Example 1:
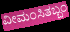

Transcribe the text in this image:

ವೀಮಂಸಿತಬ್ಬಂ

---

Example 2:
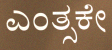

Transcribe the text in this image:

ಎಂತ್ಸಕೇ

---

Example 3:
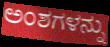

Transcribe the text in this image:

ಅಂಶಗಳನ್ನು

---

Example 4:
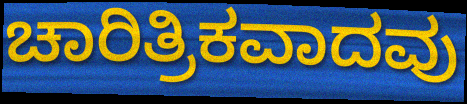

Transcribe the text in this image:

ಚಾರಿತ್ರಿಕವಾದವು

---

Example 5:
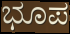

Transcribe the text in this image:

ಭೂಪ